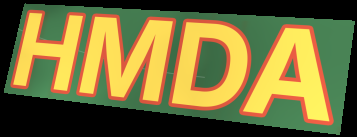
HMDA